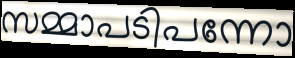
സമ്മാപടിപന്നോ